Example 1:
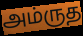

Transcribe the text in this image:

அம்ருத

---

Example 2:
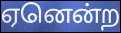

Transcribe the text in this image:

ஏனென்ற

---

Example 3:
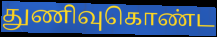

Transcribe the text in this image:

துணிவுகொண்ட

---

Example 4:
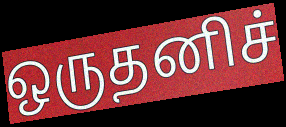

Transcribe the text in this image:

ஒருதனிச்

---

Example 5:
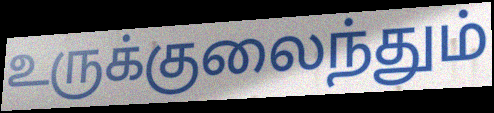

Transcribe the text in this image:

உருக்குலைந்தும்